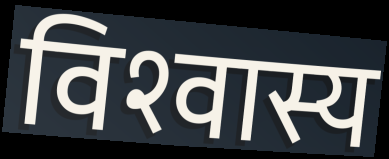
विश्वास्य